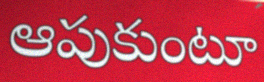
ఆపుకుంటూ